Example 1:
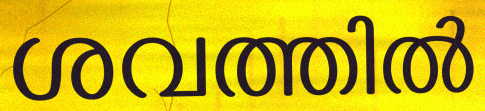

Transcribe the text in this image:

ശവത്തിൽ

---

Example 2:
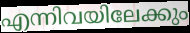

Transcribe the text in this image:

എന്നിവയിലേക്കും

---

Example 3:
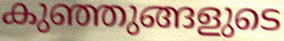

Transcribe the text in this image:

കുഞ്ഞുങ്ങളുടെ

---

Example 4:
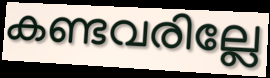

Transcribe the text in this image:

കണ്ടവരില്ലേ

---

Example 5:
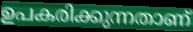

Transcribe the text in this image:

ഉപകരിക്കുന്നതാണ്